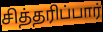
சித்தரிப்பார்